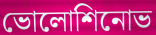
ভোলোশিনোভ